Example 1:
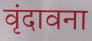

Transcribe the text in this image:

वृंदावना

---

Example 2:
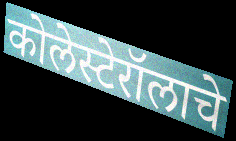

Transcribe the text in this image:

कोलेस्टेरॉलाचे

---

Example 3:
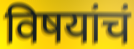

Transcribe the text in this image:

विषयांचं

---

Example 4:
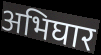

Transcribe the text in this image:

अभिघार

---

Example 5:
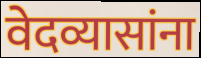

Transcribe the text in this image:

वेदव्यासांना